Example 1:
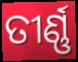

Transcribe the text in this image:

ତୀର୍ଣ୍ଣ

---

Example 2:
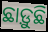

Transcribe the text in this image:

ଛାଡ଼ୁଛି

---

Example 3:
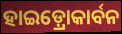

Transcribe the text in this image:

ହାଇଡ଼୍ରୋକାର୍ବନ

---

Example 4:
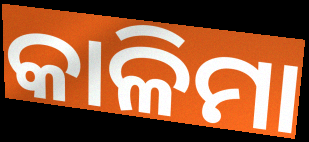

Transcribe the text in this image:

କାଳିମା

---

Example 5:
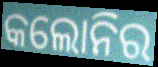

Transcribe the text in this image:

କଲୋନିର